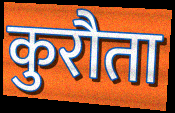
कुरौता